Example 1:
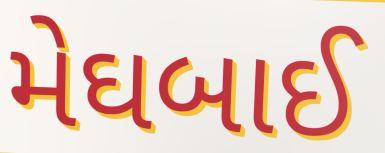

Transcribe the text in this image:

મેઘબાઈ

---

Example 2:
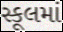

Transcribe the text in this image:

સ્કૂલમાં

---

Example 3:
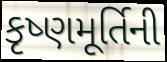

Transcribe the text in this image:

કૃષ્ણમૂર્તિની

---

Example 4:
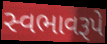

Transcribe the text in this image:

સ્વભાવરૂપે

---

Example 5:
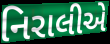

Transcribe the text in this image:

નિરાલીએ